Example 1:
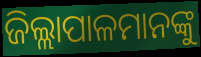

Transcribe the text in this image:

ଜିଲ୍ଲାପାଳମାନଙ୍କୁ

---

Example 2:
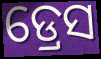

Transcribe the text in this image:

ଡ୍ରେସ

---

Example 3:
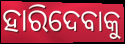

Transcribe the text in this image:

ହାରିଦେବାକୁ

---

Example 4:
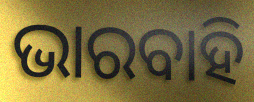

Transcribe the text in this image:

ଭାରବାହି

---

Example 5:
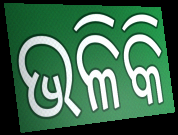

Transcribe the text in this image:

ଭଳିକି